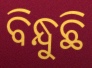
ବିନ୍ଧୁଛି